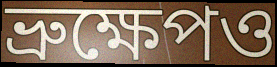
ভ্রুক্ষেপও